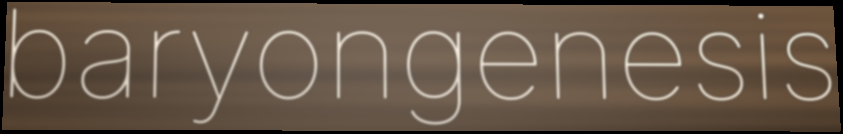
baryongenesis